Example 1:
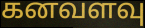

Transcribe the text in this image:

கனவளவு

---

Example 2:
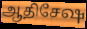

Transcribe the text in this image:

ஆதிசேஷ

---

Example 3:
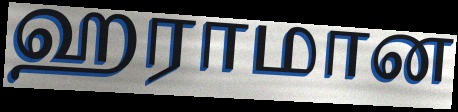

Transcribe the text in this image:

ஹராமான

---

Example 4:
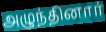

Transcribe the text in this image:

அழுந்தினார்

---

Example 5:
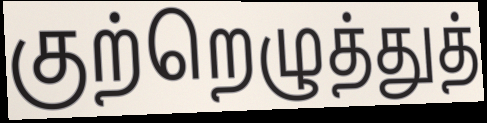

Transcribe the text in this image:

குற்றெழுத்துத்